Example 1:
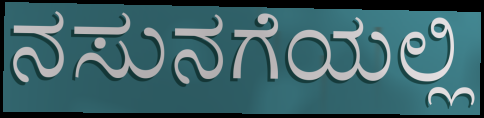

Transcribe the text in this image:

ನಸುನಗೆಯಲ್ಲಿ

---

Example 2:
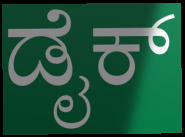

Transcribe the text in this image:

ಡೈಕ್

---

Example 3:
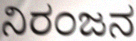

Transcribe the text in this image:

ನಿರಂಜನ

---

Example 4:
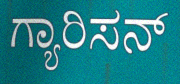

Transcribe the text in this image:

ಗ್ಯಾರಿಸನ್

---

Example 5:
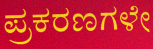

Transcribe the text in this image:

ಪ್ರಕರಣಗಳೇ